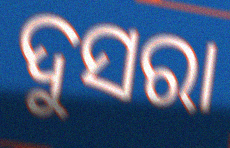
ଦୁସରା